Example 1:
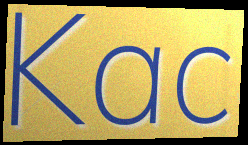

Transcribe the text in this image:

Kac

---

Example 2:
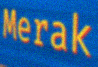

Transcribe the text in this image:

Merak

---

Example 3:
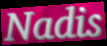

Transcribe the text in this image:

Nadis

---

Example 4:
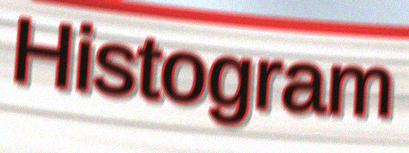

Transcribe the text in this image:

Histogram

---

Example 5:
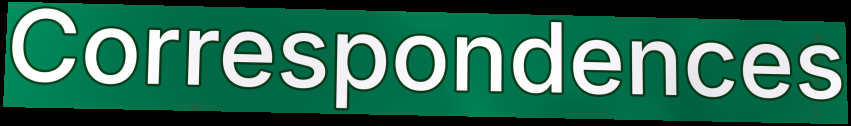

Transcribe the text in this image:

Correspondences